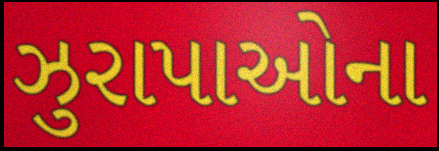
ઝુરાપાઓના